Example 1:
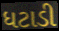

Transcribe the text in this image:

ધટાડી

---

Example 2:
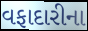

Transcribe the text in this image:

વફાદારીના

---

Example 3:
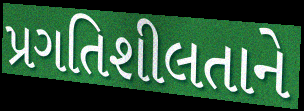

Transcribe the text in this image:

પ્રગતિશીલતાને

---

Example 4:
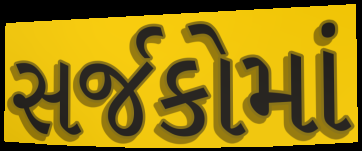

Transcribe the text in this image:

સર્જકોમાં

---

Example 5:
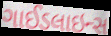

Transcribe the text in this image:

ગાઈડલાઇન્સ